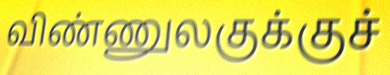
விண்ணுலகுக்குச்